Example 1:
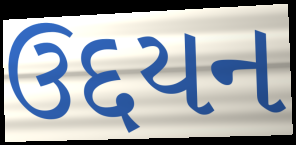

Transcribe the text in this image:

ઉદ્દયન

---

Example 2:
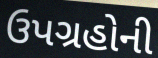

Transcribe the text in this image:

ઉપગ્રહોની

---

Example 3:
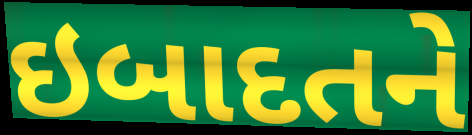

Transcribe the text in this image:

ઇબાદતને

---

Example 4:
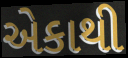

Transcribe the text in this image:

એકાથી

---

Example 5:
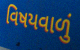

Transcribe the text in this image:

વિષયવાળું